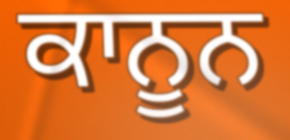
ਕਾਨੂਨ